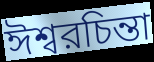
ঈশ্বরচিন্তা